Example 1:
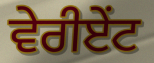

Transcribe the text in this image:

ਵੇਰੀਏਂਟ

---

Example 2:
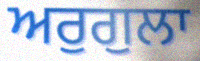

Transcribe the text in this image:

ਅਰੁਗੁਲਾ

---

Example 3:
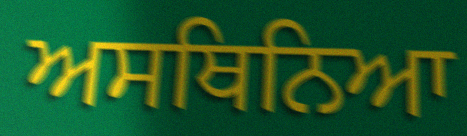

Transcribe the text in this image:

ਅਸਥਿਨਿਆ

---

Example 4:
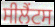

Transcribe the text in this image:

ਸੀਲੈਂਟਸ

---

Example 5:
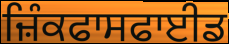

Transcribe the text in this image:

ਜ਼ਿੰਕਫਾਸਫਾਈਡ